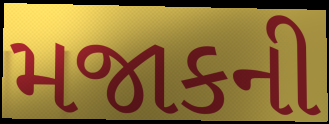
મજાકની